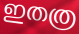
ഇതത്ര